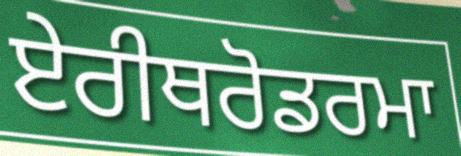
ਏਰੀਥਰੋਡਰਮਾ